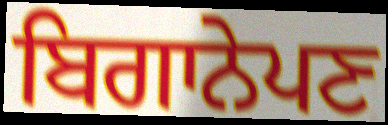
ਬਿਗਾਨੇਪਣ